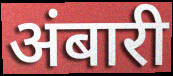
अंबारी